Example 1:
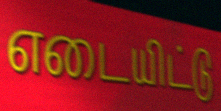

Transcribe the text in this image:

எடையிட்டு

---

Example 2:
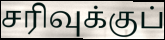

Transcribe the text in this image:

சரிவுக்குப்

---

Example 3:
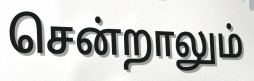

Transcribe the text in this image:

சென்றாலும்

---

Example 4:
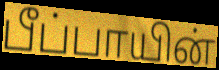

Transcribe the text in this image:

பீப்பாயின்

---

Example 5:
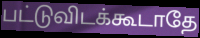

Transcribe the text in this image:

பட்டுவிடக்கூடாதே